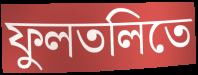
ফুলতলিতে